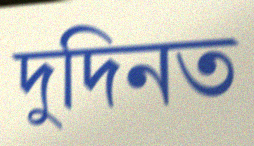
দুদিনত